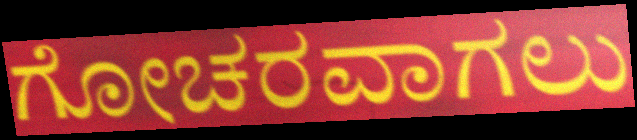
ಗೋಚರವಾಗಲು